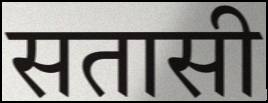
सतासी